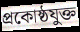
প্রকোষ্ঠযুক্ত